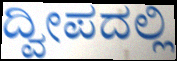
ದ್ವೀಪದಲ್ಲಿ